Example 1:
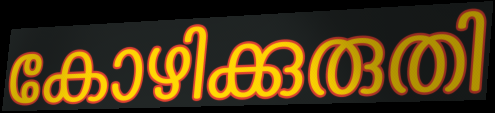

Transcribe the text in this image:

കോഴിക്കുരുതി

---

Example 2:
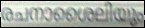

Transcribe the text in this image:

രചനാശൈലിയും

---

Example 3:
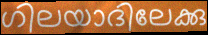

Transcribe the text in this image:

ഗിലയാദിലേക്കു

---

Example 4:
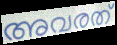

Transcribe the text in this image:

അവരത്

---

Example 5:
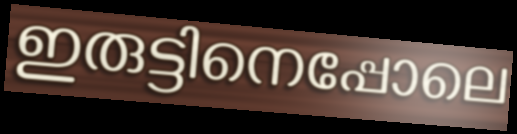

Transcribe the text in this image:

ഇരുട്ടിനെപ്പോലെ